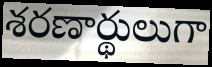
శరణార్థులుగా